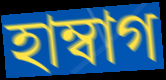
হাম্বাগ